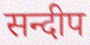
सन्दीप